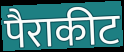
पैराकीट